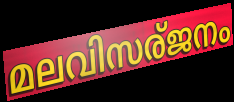
മലവിസര്ജനം